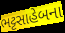
ભટ્ટસાહેબના